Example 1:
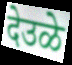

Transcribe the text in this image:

देउळे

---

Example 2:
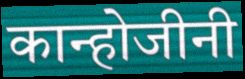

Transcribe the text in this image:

कान्होजीनी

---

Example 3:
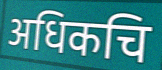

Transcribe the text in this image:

अधिकचि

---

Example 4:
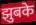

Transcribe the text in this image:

झुबके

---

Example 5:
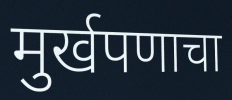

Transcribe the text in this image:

मुर्खपणाचा